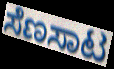
ಸೆಣಸಾಟ